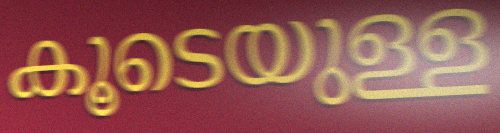
കൂടെയുള്ള